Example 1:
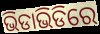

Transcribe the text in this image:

ଭିଡାଭିଡିରେ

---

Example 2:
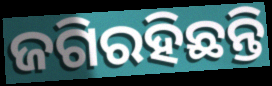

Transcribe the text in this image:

ଜଗିରହିଛନ୍ତି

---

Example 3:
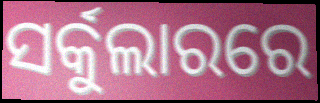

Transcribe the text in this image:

ସର୍କୁଲାରରେ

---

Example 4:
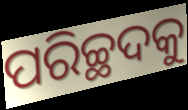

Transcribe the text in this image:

ପରିଚ୍ଛଦକୁ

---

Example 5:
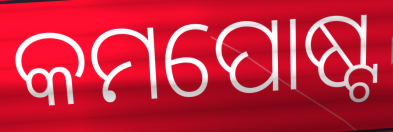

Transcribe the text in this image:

କମପୋଷ୍ଟ